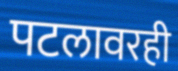
पटलावरही